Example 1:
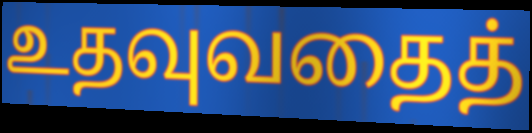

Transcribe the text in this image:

உதவுவதைத்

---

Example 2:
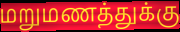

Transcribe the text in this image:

மறுமணத்துக்கு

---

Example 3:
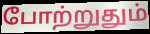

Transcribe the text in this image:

போற்றுதும்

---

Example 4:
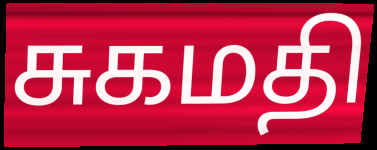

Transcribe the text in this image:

சுகமதி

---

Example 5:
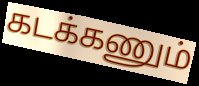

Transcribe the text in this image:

கடக்கணும்